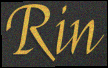
Rin